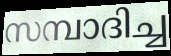
സമ്പാദിച്ച